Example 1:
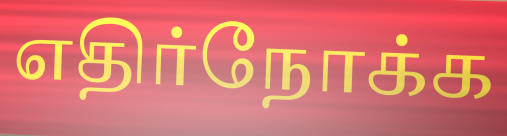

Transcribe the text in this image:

எதிர்நோக்க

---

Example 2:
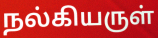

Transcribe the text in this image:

நல்கியருள்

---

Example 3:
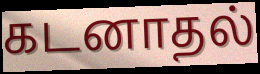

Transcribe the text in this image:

கடனாதல்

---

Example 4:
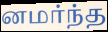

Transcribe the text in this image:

னமர்ந்த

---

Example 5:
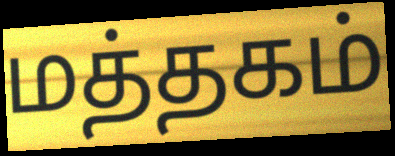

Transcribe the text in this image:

மத்தகம்